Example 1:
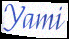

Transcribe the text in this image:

Yami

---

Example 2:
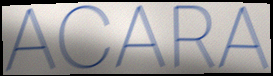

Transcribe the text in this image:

ACARA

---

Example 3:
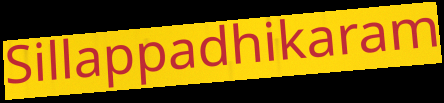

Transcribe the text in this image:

Sillappadhikaram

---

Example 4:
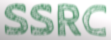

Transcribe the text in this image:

SSRC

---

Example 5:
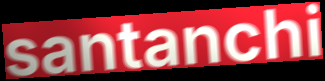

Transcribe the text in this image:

santanchi